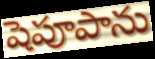
షెపూపాను